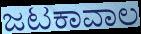
ಜಟಕಾವಾಲ